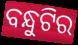
ବନ୍ଧୁଟିର